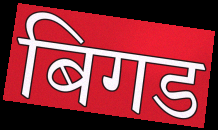
बिगड